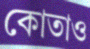
কোতাও